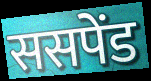
ससपेंड